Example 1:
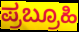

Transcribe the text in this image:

ಪ್ರಬ್ರೂಹಿ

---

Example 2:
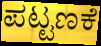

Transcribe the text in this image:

ಪಟ್ಟಣಕೆ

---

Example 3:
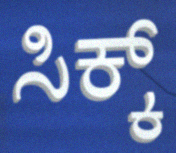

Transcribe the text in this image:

ಸಿಕ್ಕ್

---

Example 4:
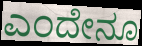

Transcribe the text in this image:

ಎಂದೇನೂ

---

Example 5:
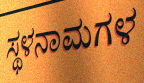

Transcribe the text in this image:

ಸ್ಥಳನಾಮಗಳ